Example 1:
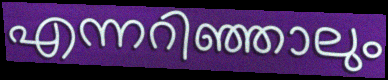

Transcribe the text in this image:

എന്നറിഞ്ഞാലും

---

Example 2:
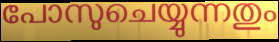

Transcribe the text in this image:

പോസുചെയ്യുന്നതും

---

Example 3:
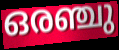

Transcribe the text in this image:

ഒരഞ്ചു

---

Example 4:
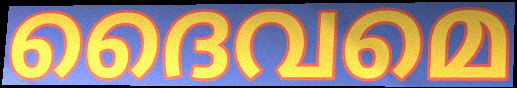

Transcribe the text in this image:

ദൈവമെ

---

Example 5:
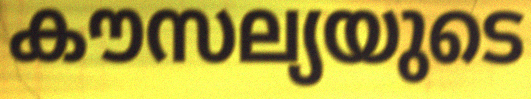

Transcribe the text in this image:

കൗസല്യയുടെ